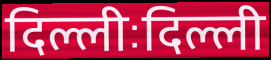
दिल्लीःदिल्ली